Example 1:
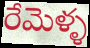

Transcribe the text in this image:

రేమెళ్ళ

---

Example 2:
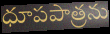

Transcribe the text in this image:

ధూపపాత్రను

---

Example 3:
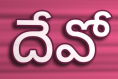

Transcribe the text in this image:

దేవో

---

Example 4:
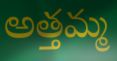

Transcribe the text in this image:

అత్తమ్మ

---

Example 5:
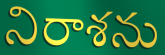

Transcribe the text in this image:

నిరాశను